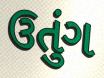
ઉતુંગ